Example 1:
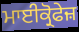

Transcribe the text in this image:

ਮਾਈਕ੍ਰੋਫੇਜ਼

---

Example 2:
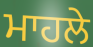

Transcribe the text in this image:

ਮਾਹਲੇ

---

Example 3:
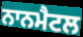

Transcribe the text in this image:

ਨਾਨਮੈਟਲ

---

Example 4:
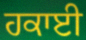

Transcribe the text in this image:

ਹਕਾਈ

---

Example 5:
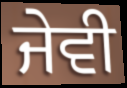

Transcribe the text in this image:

ਜੇਵੀ